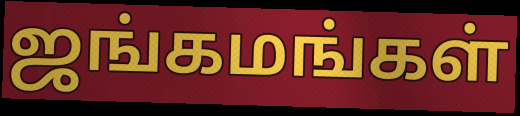
ஜங்கமங்கள்